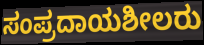
ಸಂಪ್ರದಾಯಶೀಲರು